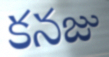
కనజు